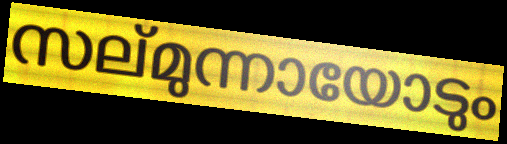
സല്മുന്നായോടും